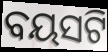
ବୟସଟି